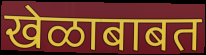
खेळाबाबत